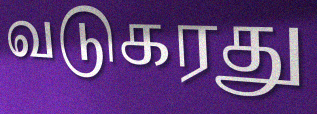
வடுகரது